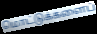
மொட்டுக்களைப்